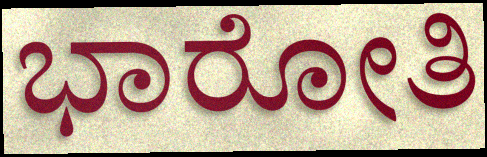
ಭಾರೋತಿ